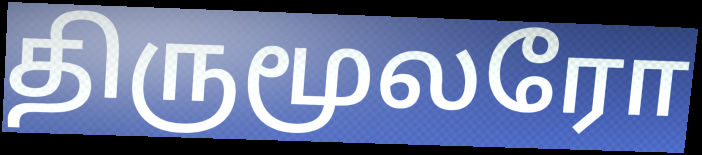
திருமூலரோ